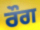
ਰੌਗ